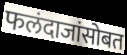
फलंदाजांसोबत